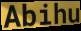
Abihu